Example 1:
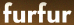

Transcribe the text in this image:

furfur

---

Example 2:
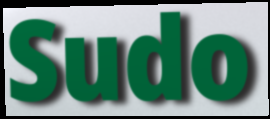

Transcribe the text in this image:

Sudo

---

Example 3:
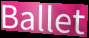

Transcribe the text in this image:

Ballet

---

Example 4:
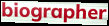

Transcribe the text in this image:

biographer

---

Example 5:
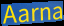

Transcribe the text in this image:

Aarna